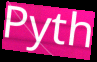
Pyth